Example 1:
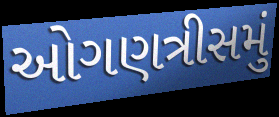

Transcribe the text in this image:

ઓગણત્રીસમું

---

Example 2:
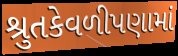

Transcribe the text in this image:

શ્રુતકેવળીપણામાં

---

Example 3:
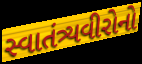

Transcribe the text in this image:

સ્વાતંત્ર્યવીરોનો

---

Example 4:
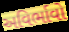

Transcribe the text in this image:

અવિર્ભાવો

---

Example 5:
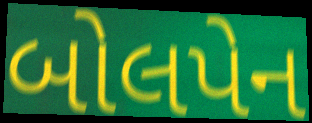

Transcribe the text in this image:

બોલપેન